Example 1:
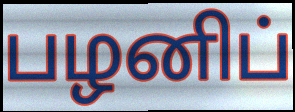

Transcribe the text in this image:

பழனிப்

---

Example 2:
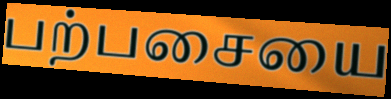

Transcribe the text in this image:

பற்பசையை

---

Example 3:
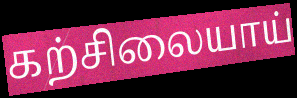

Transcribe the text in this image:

கற்சிலையாய்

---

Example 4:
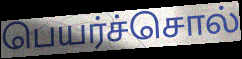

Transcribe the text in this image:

பெயர்ச்சொல்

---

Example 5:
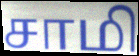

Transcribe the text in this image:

சாமி